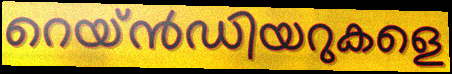
റെയ്ൻഡിയറുകളെ